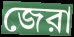
জেরা